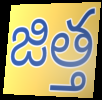
జిత్త